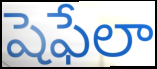
షెఫేలా